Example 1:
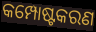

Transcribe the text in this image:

କମ୍ପୋଷ୍ଟକରଣ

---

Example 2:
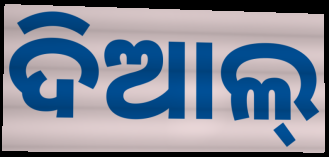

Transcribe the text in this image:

ଦିଆଲ୍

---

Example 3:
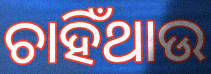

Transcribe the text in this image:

ଚାହିଁଥାଉ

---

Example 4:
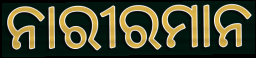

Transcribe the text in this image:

ନାରୀରମାନ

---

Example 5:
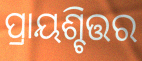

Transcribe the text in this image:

ପ୍ରାୟଶ୍ଚିତ୍ତର